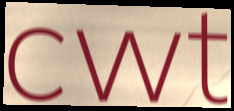
cwt